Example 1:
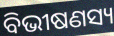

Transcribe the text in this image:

ବିଭୀଷଣସ୍ୟ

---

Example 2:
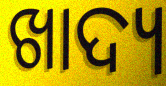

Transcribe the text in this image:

ଖାଦ୍ୟ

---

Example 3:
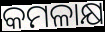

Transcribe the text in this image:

କମଳାକ୍ଷ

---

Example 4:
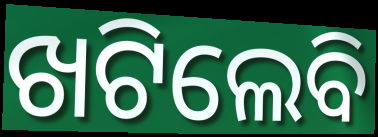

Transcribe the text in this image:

ଖଟିଲେବି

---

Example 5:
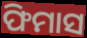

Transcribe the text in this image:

ଫିମାସ